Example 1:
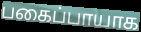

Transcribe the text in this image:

பகைப்பாயாக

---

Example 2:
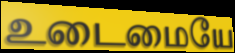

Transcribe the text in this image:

உடைமையே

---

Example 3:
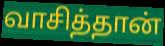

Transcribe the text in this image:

வாசித்தான்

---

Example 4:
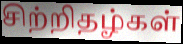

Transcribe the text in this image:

சிற்றிதழ்கள்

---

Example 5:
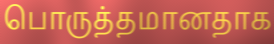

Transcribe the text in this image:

பொருத்தமானதாக